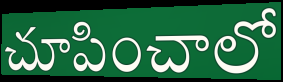
చూపించాలో